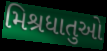
મિશ્રધાતુઓ